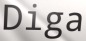
Diga